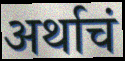
अर्थाचं